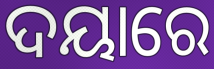
ଦୟାରେ